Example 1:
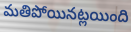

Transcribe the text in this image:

మతిపోయినట్లయింది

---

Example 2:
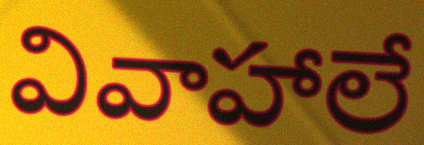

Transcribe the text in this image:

వివాహాలే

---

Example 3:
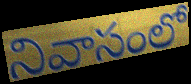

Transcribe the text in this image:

నివాసంలో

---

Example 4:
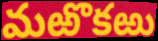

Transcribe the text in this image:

మఱొకఱు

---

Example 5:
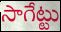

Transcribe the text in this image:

సాగేట్టు